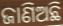
ଜାଣିଅଛି